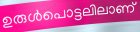
ഉരുൾപൊട്ടലിലാണ്